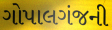
ગોપાલગંજની